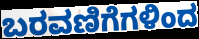
ಬರವಣಿಗೆಗಳಿಂದ